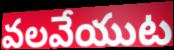
వలవేయుట